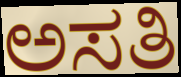
ಅಸತಿ